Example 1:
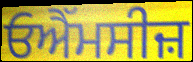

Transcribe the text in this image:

ਓਐੱਮਸੀਜ਼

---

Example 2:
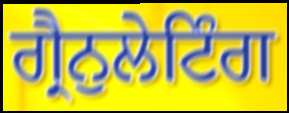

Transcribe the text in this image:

ਗ੍ਰੈਨੁਲੇਟਿੰਗ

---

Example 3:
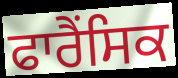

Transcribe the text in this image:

ਫਾਰੈਂਸਿਕ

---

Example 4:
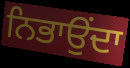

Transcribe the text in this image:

ਨਿਭਾਉਂਦਾ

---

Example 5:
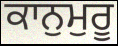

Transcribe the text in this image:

ਕਾਨੁਮੁਰੂ